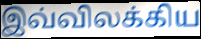
இவ்விலக்கிய